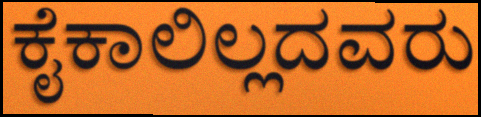
ಕೈಕಾಲಿಲ್ಲದವರು